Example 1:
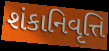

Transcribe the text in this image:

શંકાનિવૃત્તિ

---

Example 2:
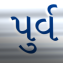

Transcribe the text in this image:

પુર્વ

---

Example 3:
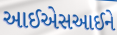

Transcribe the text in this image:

આઈએસઆઈને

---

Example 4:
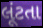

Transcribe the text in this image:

લૂંટતા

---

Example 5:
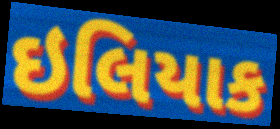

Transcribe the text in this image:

ઇલિયાક